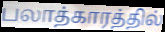
பலாத்காரத்தில்